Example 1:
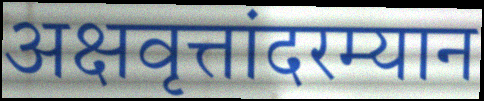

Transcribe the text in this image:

अक्षवृत्तांदरम्यान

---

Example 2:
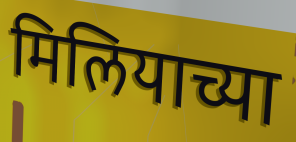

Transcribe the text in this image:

मिलियाच्या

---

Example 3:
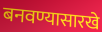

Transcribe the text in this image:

बनवण्यासारखे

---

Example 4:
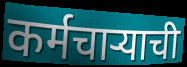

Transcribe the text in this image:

कर्मचार्‍याची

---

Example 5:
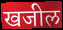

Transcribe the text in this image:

खजील